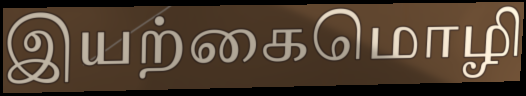
இயற்கைமொழி